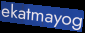
ekatmayog